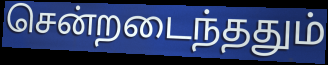
சென்றடைந்ததும்